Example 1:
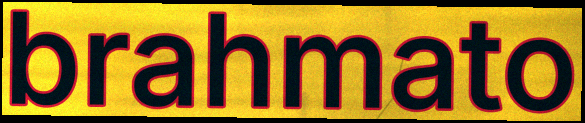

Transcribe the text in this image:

brahmato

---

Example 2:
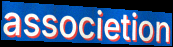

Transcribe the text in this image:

associetion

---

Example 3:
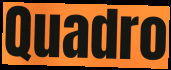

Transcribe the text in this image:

Quadro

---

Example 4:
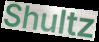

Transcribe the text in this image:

Shultz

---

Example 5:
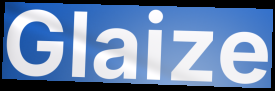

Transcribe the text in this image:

Glaize